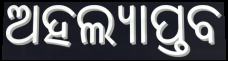
ଅହଲ୍ୟାପ୍ତବ